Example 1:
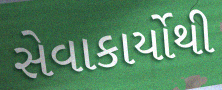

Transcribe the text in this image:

સેવાકાર્યોથી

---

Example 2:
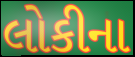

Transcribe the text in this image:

લોકીના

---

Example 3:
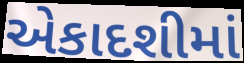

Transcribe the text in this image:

એકાદશીમાં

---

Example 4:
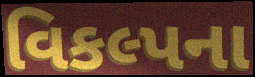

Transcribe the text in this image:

વિકલ્પના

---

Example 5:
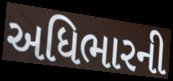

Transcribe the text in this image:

અધિભારની